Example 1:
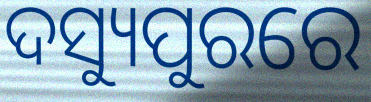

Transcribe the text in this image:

ଦସ୍ୟୁପୁରରେ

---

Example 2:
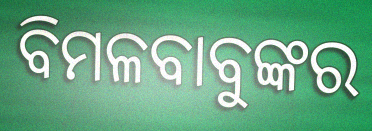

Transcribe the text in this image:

ବିମଳବାବୁଙ୍କର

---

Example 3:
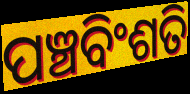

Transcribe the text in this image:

ପଞ୍ଚବିଂଶତି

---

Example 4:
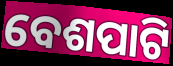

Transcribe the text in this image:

ବେଶପାଟି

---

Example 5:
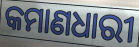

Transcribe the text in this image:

କମାଣଧାରୀ